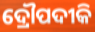
ଦ୍ରୌପଦୀକି